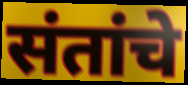
संतांचे